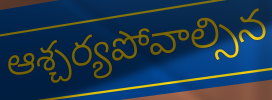
ఆశ్చర్యపోవాల్సిన